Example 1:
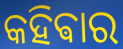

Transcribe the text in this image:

କହିଵାର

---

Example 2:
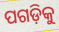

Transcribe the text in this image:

ପଗଡ଼ିକୁ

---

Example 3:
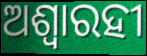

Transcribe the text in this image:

ଅଶ୍ୱାରହୀ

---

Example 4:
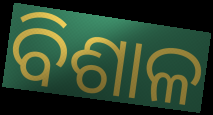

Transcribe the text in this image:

ବିଶାଳ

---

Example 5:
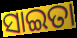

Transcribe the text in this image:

ସାଇତା